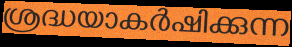
ശ്രദ്ധയാകർഷിക്കുന്ന